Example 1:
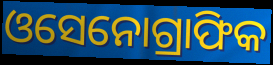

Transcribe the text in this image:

ଓସେନୋଗ୍ରାଫିକ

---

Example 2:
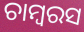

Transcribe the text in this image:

ଚାମ୍ବରସ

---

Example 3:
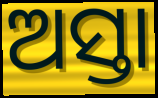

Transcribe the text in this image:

ଅସ୍ତା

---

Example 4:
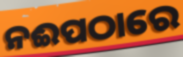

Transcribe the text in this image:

ନଈପଠାରେ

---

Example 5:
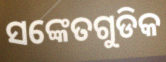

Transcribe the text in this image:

ସଙ୍କେତଗୁଡିକ